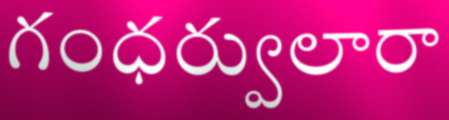
గంధర్వులారా